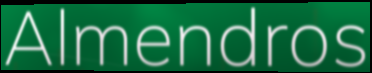
Almendros